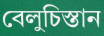
বেলুচিস্তান